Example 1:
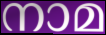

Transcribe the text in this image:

നാമ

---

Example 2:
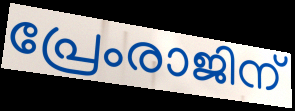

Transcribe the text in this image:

പ്രേംരാജിന്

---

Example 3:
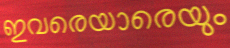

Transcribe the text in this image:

ഇവരെയാരെയും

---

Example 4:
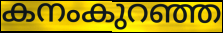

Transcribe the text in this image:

കനംകുറഞ്ഞ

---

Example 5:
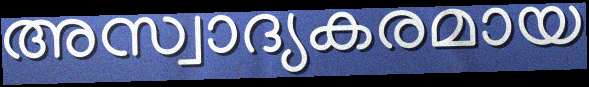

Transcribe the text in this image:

അസ്വാദ്യകരമായ